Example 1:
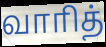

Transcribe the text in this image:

வாரித்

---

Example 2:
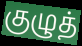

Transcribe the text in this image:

குழுத்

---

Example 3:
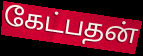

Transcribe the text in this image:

கேட்பதன்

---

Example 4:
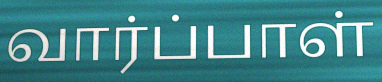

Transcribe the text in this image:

வார்ப்பாள்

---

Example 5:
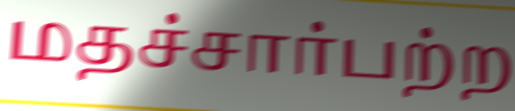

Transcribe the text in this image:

மதச்சார்பற்ற